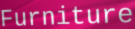
Furniture